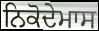
ਨਿਕੋਦੇਮਾਸ